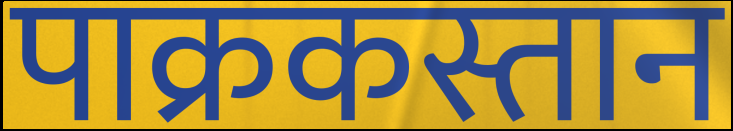
पाक्रकस्तान